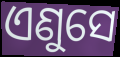
ଏଣୁସେ